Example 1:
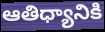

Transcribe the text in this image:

ఆతిధ్యానికి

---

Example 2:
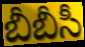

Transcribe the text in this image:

బీబీసీ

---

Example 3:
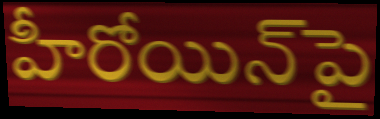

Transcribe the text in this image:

హీరోయిన్‌పై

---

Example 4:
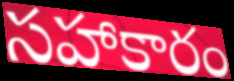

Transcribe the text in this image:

సహాకారం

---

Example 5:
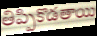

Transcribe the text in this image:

తిప్పికొడతాయి